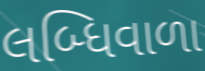
લબ્ધિવાળા